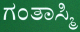
ಗಂತಾಸ್ಮಿ